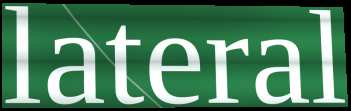
lateral